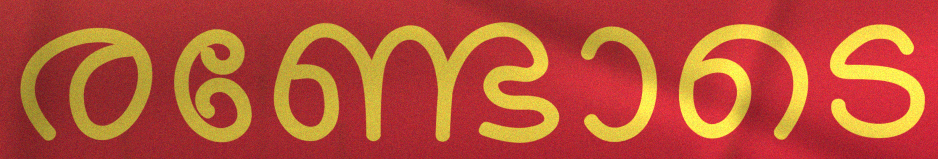
രണ്ടോടെ